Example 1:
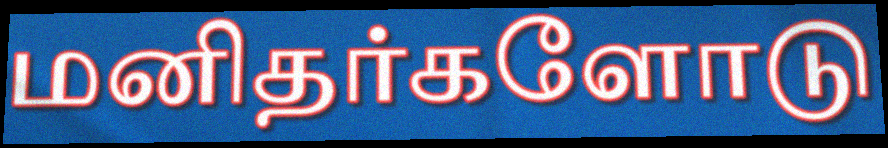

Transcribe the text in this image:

மனிதர்களோடு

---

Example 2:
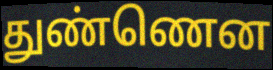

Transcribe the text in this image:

துண்ணென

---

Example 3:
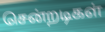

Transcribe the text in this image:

சென்றடிகள்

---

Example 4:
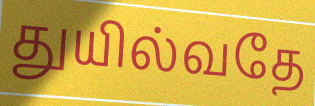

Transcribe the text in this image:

துயில்வதே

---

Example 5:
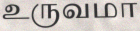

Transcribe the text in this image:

உருவமா